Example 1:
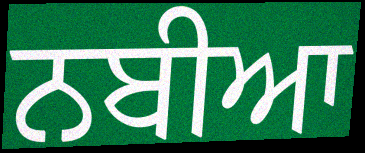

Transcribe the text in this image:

ਨਬੀਆ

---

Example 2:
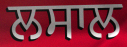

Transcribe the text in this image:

ਲਸਾਲ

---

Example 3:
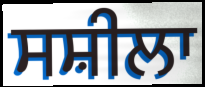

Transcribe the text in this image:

ਸਸ਼ੀਲਾ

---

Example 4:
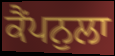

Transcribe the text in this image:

ਕੈਂਪਨੁਲਾ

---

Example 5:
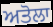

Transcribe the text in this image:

ਅਤੋਲਾ